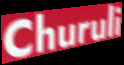
Churuli